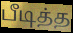
பீடித்த